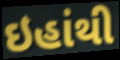
ઇહાંથી